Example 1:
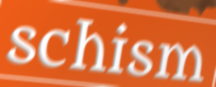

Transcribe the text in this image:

schism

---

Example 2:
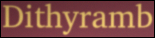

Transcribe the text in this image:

Dithyramb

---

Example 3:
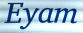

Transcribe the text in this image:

Eyam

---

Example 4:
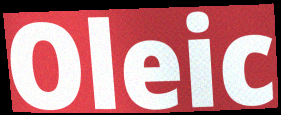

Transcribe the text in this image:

Oleic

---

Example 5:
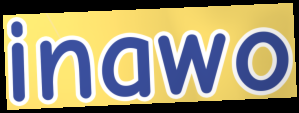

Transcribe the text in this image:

inawo